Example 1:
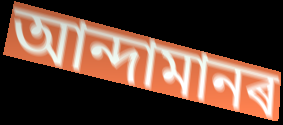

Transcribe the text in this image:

আন্দামানৰ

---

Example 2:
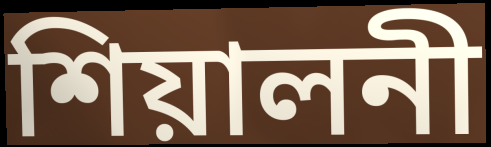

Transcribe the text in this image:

শিয়ালনী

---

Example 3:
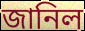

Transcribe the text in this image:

জানিল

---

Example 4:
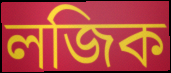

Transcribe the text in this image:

লজিক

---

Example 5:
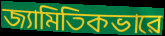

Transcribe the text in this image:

জ্যামিতিকভাৱে